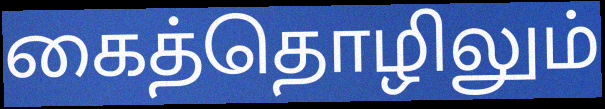
கைத்தொழிலும்